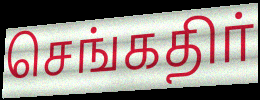
செங்கதிர்